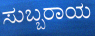
ಸುಬ್ಬರಾಯ